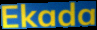
Ekada